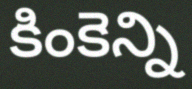
కింకెన్ని